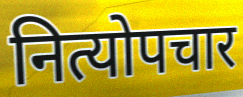
नित्योपचार